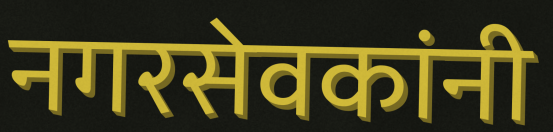
नगरसेवकांनी